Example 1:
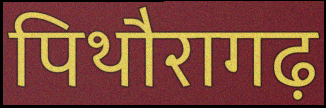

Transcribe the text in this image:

पिथौरागढ़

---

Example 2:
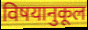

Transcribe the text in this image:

विषयानुकूल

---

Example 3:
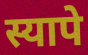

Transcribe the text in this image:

स्यापे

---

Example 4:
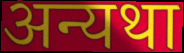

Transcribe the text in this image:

अन्यथा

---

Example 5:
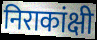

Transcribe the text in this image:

निराकांक्षी